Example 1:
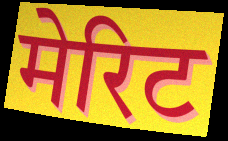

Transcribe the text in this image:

मेरिट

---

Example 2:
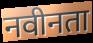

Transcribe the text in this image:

नवीनता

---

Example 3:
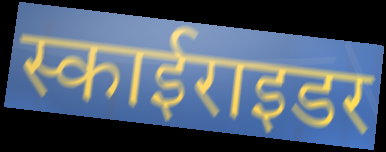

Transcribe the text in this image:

स्काईराइडर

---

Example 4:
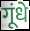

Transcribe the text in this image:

गूंधे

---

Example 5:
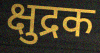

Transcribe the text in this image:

क्षुद्रक